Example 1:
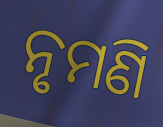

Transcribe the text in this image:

ନୃମଣି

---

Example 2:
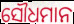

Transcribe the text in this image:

ସୌଧମାନ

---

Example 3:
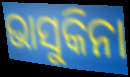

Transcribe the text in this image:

ଭାସୁକିନା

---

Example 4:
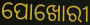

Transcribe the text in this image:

ପୋଖୋରୀ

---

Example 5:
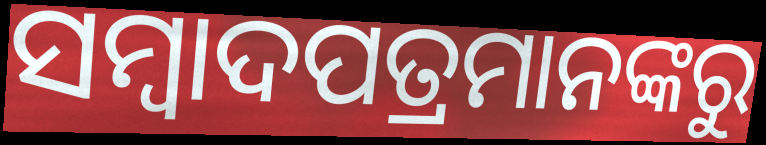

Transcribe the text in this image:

ସମ୍ୱାଦପତ୍ରମାନଙ୍କରୁ